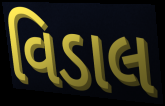
વિડાલ